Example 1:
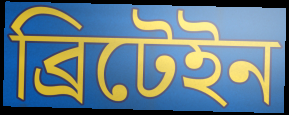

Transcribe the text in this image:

ব্ৰিটেইন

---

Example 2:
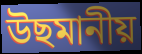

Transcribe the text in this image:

উছমানীয়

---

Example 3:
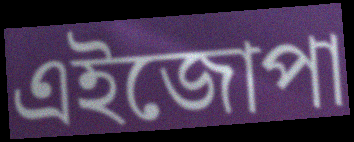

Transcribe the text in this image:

এইজোপা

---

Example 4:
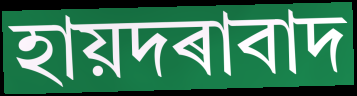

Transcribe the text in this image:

হায়দৰাবাদ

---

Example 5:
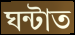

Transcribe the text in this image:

ঘন্টাত